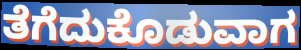
ತೆಗೆದುಕೊಡುವಾಗ